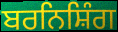
ਬਰਨਿਸ਼ਿੰਗ